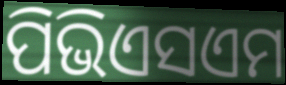
ପିଭିଏସଏମ